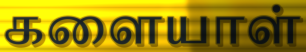
களையாள்